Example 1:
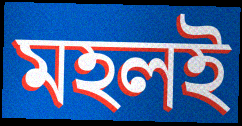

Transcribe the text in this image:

মহলই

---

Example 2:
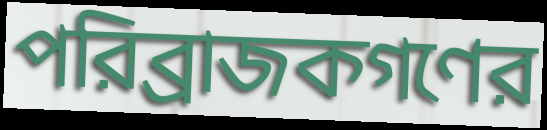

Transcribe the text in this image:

পরিব্রাজকগণের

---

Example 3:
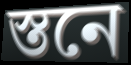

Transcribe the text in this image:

স্তনে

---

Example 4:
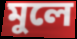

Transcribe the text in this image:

মুলে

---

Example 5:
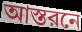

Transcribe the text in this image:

আস্তরনে